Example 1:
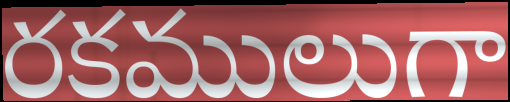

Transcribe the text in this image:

రకములుగా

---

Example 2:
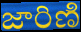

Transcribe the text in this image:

జారిణి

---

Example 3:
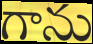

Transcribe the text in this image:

గాను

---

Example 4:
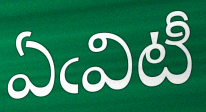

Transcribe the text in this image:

ఏఁవిటీ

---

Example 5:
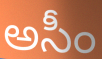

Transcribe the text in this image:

అసీం